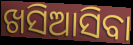
ଖସିଆସିବା